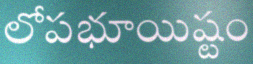
లోపభూయిష్టం